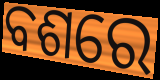
ବଶରେ